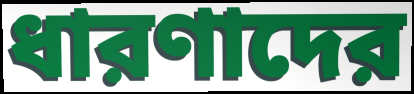
ধারণাদের